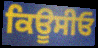
ਕਿਊਸੀਓ